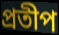
প্রতীপ